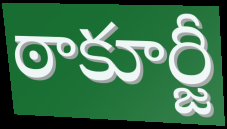
ఠాకూర్జీ